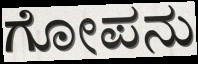
ಗೋಪನು